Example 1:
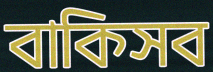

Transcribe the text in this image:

বাকিসব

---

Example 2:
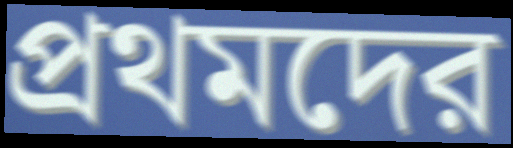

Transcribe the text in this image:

প্রথমদের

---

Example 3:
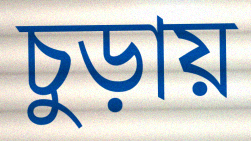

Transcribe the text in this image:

চুড়ায়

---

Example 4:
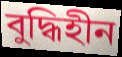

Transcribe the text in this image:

বুদ্ধিহীন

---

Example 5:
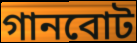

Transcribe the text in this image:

গানবোট